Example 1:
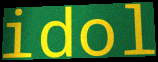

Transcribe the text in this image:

idol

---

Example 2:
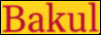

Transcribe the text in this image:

Bakul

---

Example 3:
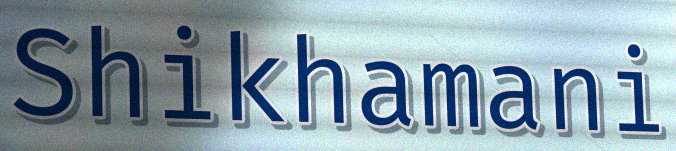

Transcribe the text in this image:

Shikhamani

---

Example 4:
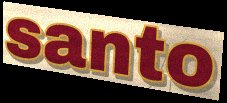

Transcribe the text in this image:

santo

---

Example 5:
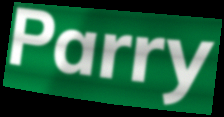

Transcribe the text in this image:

Parry